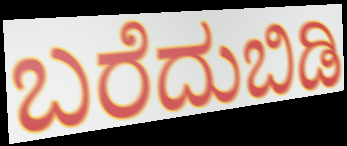
ಬರೆದುಬಿಡಿ